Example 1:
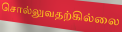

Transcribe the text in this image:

சொல்லுவதற்கில்லை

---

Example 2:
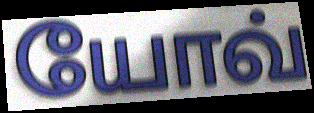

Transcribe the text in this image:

யோவ்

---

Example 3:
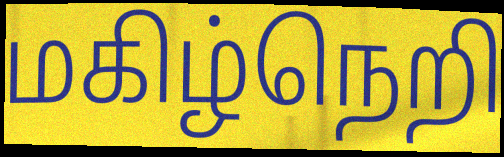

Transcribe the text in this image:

மகிழ்நெறி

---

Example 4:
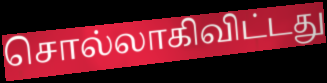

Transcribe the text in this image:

சொல்லாகிவிட்டது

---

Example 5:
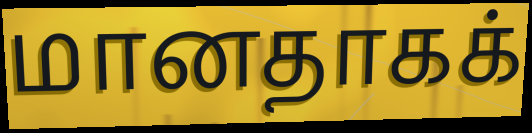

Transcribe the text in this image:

மானதாகக்